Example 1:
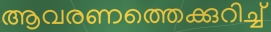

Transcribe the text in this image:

ആവരണത്തെക്കുറിച്ച്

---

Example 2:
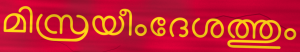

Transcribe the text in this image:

മിസ്രയീംദേശത്തും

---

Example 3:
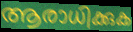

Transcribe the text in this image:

ആരാധിക്കുക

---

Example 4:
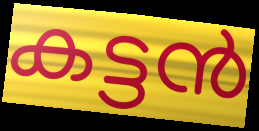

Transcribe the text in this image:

കട്ടൻ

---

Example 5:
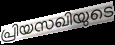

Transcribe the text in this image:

പ്രിയസഖിയുടെ